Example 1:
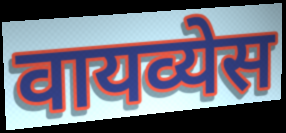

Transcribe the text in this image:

वायव्येस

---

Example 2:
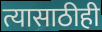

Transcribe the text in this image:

त्यासाठीही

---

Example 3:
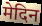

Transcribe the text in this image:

मेदिन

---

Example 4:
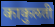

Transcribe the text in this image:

काकुलती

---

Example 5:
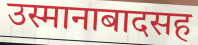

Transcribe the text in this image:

उस्मानाबादसह